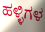
ಹಳ್ಳಿಗಳ